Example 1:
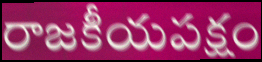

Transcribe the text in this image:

రాజకీయపక్షం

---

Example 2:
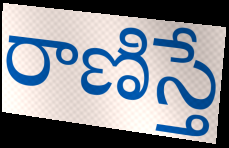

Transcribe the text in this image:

రాణిస్తే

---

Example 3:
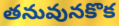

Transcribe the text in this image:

తనువునకొక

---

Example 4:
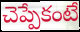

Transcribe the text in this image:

చెప్పేకంటే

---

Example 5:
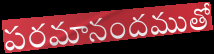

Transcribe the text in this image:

పరమానందముతో